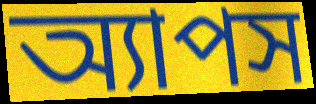
অ্যাপস